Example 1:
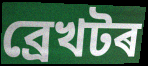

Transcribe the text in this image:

ব্ৰেখটৰ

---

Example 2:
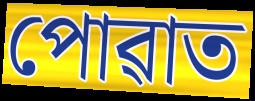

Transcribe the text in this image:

পোৱাত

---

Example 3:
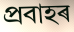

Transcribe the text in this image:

প্ৰবাহৰ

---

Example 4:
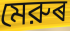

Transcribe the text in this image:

মেৰুৰ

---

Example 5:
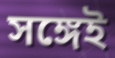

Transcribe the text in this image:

সঙ্গেই